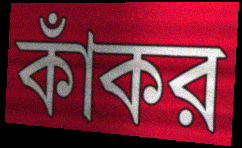
কাঁকর